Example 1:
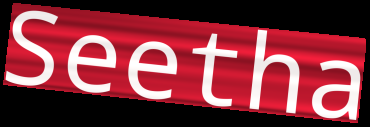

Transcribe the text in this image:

Seetha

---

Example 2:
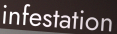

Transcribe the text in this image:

infestation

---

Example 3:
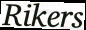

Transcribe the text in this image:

Rikers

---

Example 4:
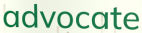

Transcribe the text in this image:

advocate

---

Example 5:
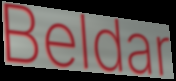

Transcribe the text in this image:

Beldar